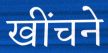
खींचने